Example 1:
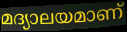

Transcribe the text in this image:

മദ്യാലയമാണ്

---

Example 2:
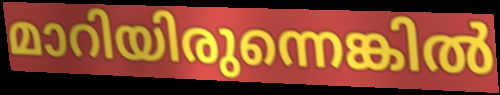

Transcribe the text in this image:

മാറിയിരുന്നെങ്കിൽ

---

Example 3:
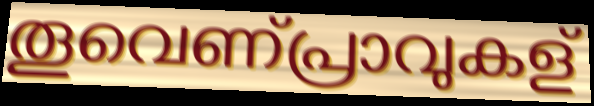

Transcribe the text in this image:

തൂവെണ്പ്രാവുകള്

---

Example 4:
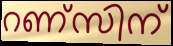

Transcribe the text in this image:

റണ്സിന്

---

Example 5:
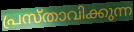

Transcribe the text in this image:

പ്രസ്താവിക്കുന്ന